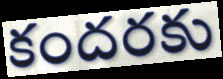
కందరకు